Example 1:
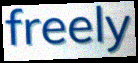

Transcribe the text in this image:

freely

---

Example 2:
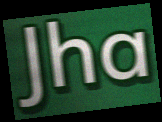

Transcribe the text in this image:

Jha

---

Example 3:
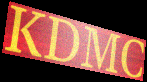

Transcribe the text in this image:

KDMC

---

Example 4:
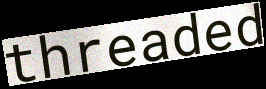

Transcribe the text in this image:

threaded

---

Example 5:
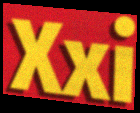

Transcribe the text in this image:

Xxi